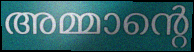
അമ്മാന്റെ